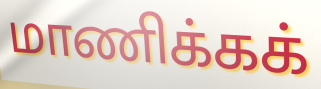
மாணிக்கக்